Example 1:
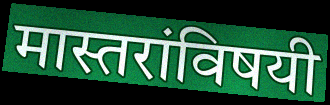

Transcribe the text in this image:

मास्तरांविषयी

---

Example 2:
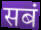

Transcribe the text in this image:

सबं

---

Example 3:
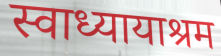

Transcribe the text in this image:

स्वाध्यायाश्रम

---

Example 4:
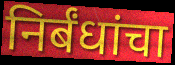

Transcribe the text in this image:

निर्बंधांचा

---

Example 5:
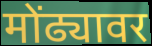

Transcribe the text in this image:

मोंढ्यावर